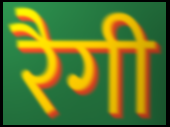
रैगी